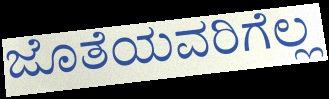
ಜೊತೆಯವರಿಗೆಲ್ಲ